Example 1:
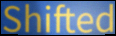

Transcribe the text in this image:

Shifted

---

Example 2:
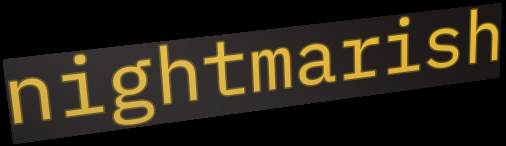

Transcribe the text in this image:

nightmarish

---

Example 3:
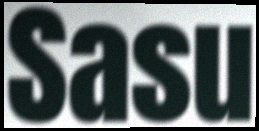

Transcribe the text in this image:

Sasu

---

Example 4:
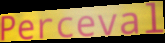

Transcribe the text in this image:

Perceval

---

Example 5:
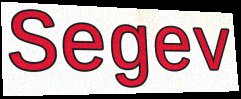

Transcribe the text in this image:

Segev